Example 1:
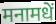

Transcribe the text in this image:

मनामधें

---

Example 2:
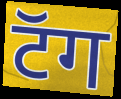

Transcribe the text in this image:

टॅग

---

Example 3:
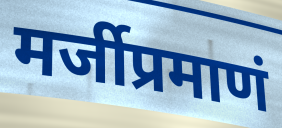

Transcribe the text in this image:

मर्जीप्रमाणं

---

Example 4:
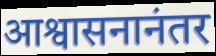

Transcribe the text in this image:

आश्वासनानंतर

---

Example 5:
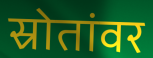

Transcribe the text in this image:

स्रोतांवर